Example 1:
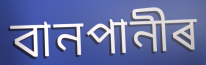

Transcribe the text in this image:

বানপানীৰ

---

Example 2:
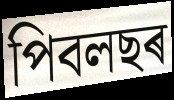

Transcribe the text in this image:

পিবলছৰ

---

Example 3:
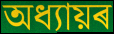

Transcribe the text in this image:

অধ্যায়ৰ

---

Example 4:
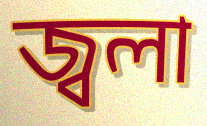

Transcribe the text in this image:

জ্বলা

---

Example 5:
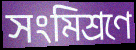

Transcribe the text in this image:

সংমিশ্ৰণে